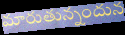
మారుతున్నందున